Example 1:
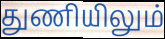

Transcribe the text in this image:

துணியிலும்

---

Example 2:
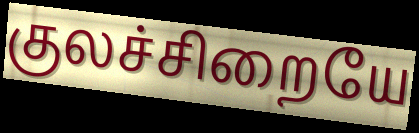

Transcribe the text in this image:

குலச்சிறையே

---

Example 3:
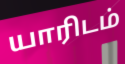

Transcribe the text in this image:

யாரிடம்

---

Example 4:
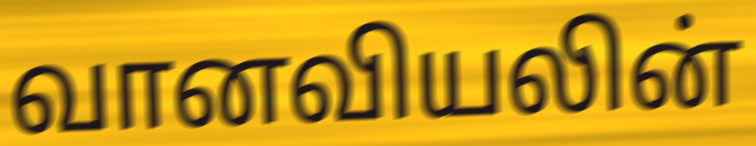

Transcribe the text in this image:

வானவியலின்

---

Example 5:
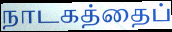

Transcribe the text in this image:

நாடகத்தைப்